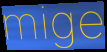
mige